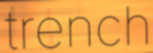
trench